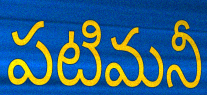
పటిమనీ